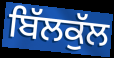
ਬਿੱਲਕੁੱਲ